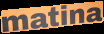
matina